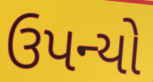
ઉપન્યો